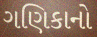
ગણિકાનો